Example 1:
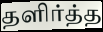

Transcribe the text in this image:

தளிர்த்த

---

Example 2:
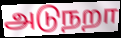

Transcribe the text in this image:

அடுநறா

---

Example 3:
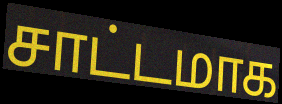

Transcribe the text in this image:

சாட்டமாக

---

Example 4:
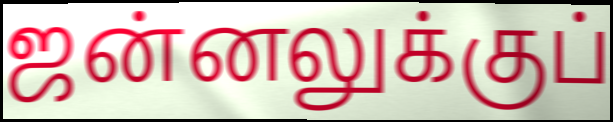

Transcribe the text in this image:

ஜன்னலுக்குப்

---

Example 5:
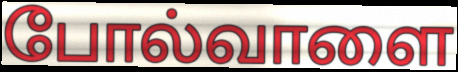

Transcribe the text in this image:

போல்வாளை